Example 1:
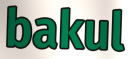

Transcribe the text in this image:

bakul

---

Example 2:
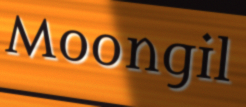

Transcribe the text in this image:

Moongil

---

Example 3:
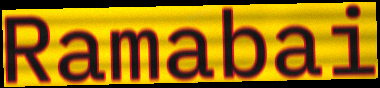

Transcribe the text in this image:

Ramabai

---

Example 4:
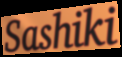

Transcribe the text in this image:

Sashiki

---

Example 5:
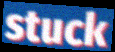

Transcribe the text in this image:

stuck